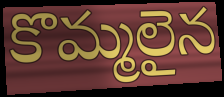
కొమ్మలైన